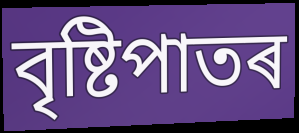
বৃষ্টিপাতৰ